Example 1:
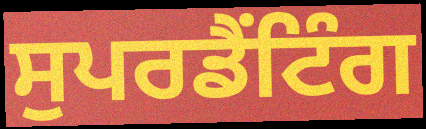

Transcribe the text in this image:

ਸੁਪਰਡੈਂਟਿੰਗ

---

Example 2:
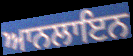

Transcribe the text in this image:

ਆਨਲਾਇਨ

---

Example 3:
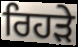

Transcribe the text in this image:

ਰਿਹੜੇ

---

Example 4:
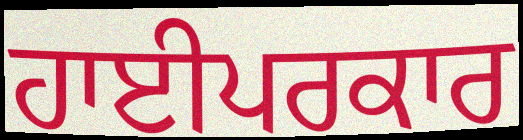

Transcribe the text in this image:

ਹਾਈਪਰਕਾਰ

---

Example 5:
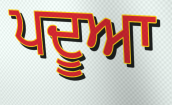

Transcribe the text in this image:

ਪਦੂਆ